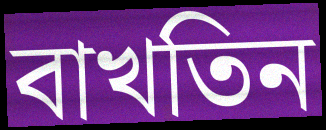
বাখতিন